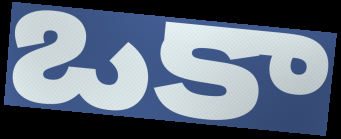
ఒకా